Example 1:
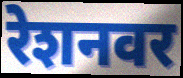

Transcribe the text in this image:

रेशनवर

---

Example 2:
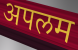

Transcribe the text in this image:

अपलम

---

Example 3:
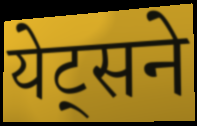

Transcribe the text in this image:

येट्सने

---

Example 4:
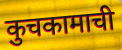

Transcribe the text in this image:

कुचकामाची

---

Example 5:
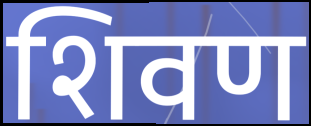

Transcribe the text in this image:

शिवण